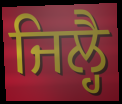
ਜਿਲ੍ਹੈ